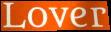
Lover